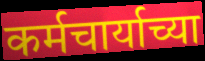
कर्मचार्याच्या